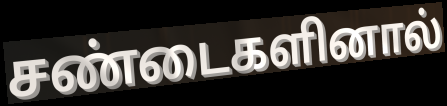
சண்டைகளினால்